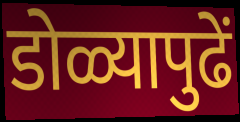
डोळ्यापुढें